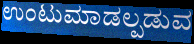
ಉಂಟುಮಾಡಲ್ಪಡುವ